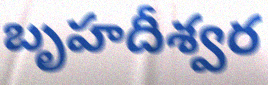
బృహదీశ్వర